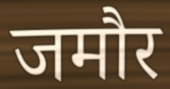
जमौर